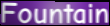
Fountain